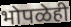
भोपळेही